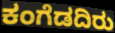
ಕಂಗೆಡದಿರು